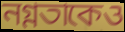
নগ্নতাকেও